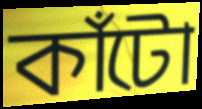
কাঁটো